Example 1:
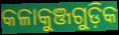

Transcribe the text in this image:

କଳାକୁଞ୍ଜଗୁଡ଼ିକ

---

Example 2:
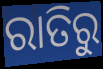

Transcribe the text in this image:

ରାତିରୁ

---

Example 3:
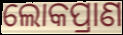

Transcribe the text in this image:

ଲୋକପ୍ରାଣ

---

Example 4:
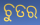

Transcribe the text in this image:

ଚୁତର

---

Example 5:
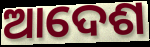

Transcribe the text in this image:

ଆଦେଶ